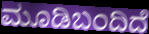
ಮೂಡಿಬಂದಿದೆ